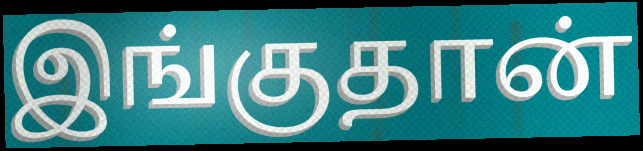
இங்குதான்